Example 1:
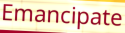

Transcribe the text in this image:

Emancipate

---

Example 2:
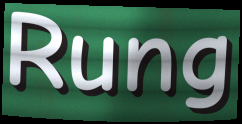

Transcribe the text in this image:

Rung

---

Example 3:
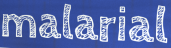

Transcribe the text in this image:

malarial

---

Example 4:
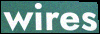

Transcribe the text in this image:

wires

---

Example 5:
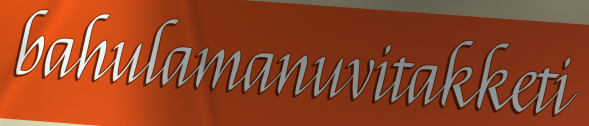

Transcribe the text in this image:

bahulamanuvitakketi